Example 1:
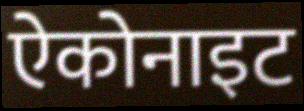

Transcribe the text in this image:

ऐकोनाइट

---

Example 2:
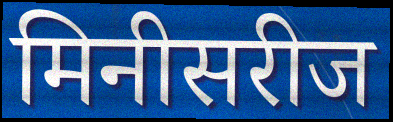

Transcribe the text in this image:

मिनीसरीज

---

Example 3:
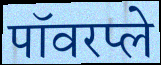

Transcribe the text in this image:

पॉवरप्ले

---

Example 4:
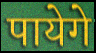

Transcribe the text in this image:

पायेगे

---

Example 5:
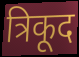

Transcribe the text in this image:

त्रिकूद